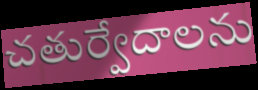
చతుర్వేదాలను